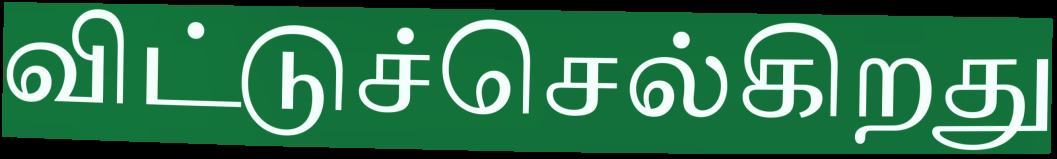
விட்டுச்செல்கிறது